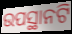
ଉପସ୍ଥାନଟି